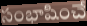
సంభాషించే